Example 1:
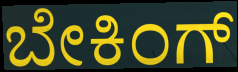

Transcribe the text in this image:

ಬೇಕಿಂಗ್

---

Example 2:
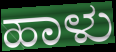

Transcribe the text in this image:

ಹಾಳು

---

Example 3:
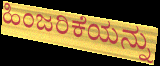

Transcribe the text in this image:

ಹಿಂಜರಿಕೆಯನ್ನು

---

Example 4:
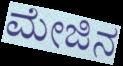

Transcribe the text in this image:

ಮೇಜಿನ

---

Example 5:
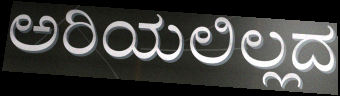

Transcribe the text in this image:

ಅರಿಯಲಿಲ್ಲದ